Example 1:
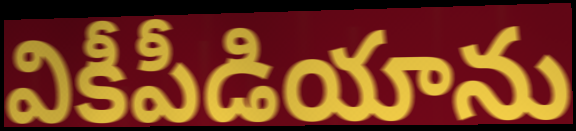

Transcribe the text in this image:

వికీపీడియాను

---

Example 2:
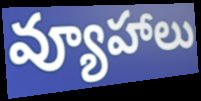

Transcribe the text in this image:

వ్యూహాలు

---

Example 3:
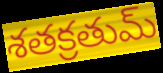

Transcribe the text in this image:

శతక్రతుమ్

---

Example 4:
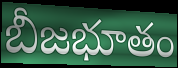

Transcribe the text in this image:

బీజభూతం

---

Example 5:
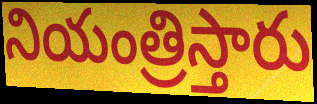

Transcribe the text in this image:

నియంత్రిస్తారు